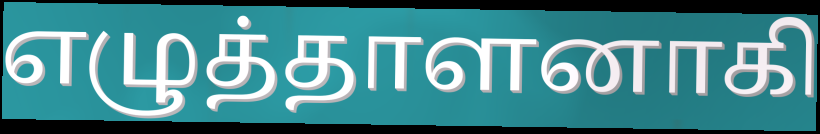
எழுத்தாளனாகி